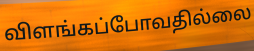
விளங்கப்போவதில்லை